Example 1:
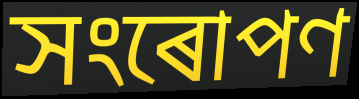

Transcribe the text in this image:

সংৰোপণ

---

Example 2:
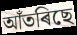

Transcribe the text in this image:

আঁতৰিছে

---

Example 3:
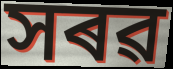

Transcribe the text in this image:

সৰৱ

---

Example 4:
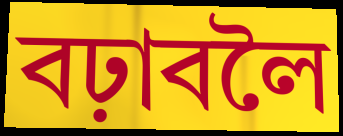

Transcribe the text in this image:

বঢ়াবলৈ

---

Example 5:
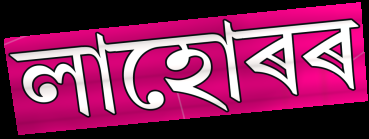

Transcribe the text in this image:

লাহোৰৰ